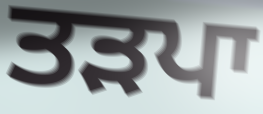
ਤੜਪਾ